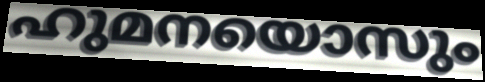
ഹുമനയൊസും